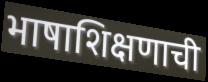
भाषाशिक्षणाची